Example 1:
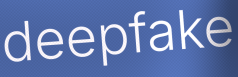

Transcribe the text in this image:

deepfake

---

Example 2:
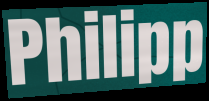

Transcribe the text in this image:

Philipp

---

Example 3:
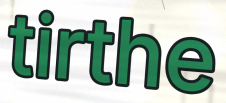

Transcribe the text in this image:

tirthe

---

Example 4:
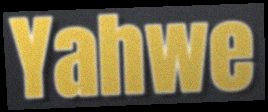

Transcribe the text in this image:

Yahwe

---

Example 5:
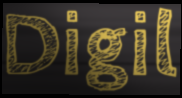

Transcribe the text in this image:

Digil